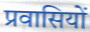
प्रवासियों